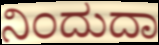
ನಿಂದುದಾ